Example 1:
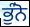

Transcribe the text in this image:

ਭੁੰਨੋ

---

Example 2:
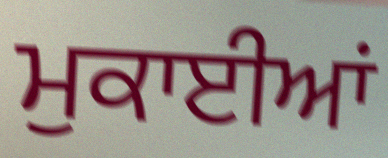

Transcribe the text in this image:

ਮੁਕਾਈਆਂ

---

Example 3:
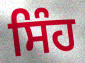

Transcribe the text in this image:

ਸਿੰਹ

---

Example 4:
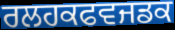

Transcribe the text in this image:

ਰਲਹਕਫਵਜਡਕ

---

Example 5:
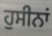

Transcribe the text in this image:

ਹੁਸੀਨਾਂ